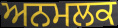
ਅਨਮਲਕ